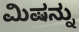
ಮಿಷನ್ನು